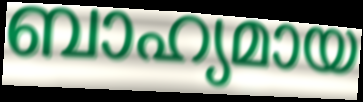
ബാഹ്യമായ